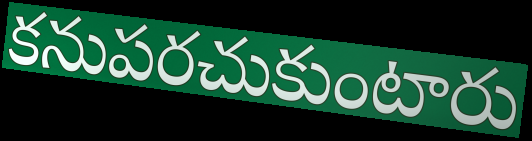
కనుపరచుకుంటారు